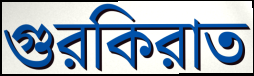
গুরকিরাত